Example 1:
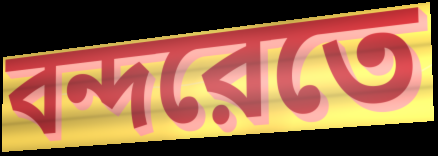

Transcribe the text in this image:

বন্দরেতে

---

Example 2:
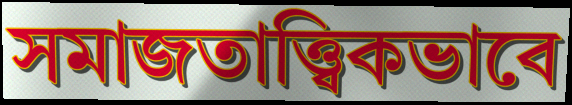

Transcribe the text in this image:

সমাজতাত্ত্বিকভাবে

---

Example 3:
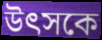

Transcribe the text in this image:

উৎসকে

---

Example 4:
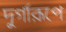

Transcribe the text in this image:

দুর্গারূপে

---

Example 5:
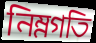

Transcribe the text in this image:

নিম্নগতি